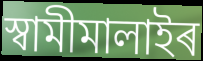
স্বামীমালাইৰ